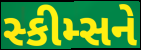
સ્કીમ્સને